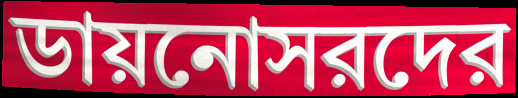
ডায়নোসরদের